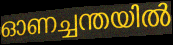
ഓണച്ചന്തയിൽ